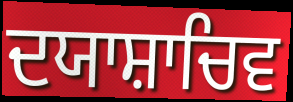
ਦਯਾਸ਼ਾਚਿਵ